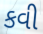
કવી